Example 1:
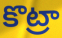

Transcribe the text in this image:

కొట్రా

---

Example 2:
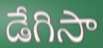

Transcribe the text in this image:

డేగిసా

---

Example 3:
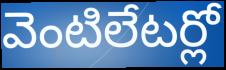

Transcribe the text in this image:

వెంటిలేటర్లో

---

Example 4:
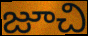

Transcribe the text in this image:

జూచి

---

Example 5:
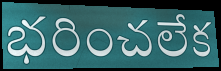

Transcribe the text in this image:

భరించలేక